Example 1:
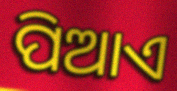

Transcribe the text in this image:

ପିଆଏ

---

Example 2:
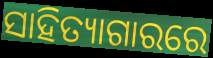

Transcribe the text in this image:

ସାହିତ୍ୟାଗାରରେ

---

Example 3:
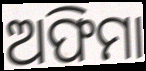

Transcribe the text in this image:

ଅଫିମା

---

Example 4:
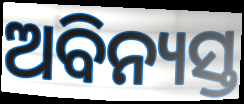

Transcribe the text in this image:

ଅବିନ୍ୟସ୍ତ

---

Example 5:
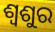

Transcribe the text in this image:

ଶ୍ଵଶୁର